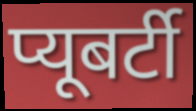
प्‍यूबर्टी